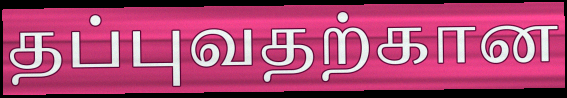
தப்புவதற்கான